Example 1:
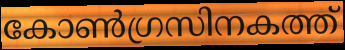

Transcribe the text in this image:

കോൺഗ്രസിനകത്ത്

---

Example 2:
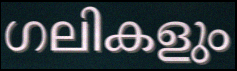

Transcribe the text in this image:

ഗലികളും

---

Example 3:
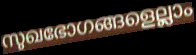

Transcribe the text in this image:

സുഖഭോഗങ്ങളെല്ലാം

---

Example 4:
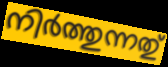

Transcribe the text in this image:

നിർത്തുന്നതു്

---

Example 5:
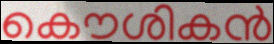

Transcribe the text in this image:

കൌശികൻ